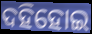
ଦହିହୋଇ